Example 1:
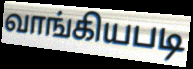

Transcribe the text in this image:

வாங்கியபடி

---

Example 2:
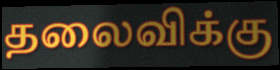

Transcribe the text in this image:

தலைவிக்கு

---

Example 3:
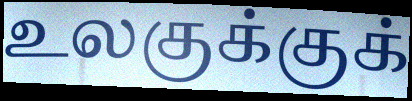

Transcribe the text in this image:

உலகுக்குக்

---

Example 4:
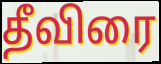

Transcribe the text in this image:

தீவிரை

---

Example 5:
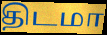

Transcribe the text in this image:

திடமா